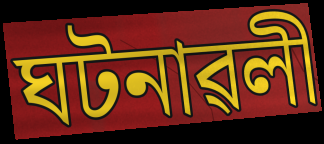
ঘটনাৱলী